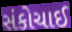
સંકોચાઈ